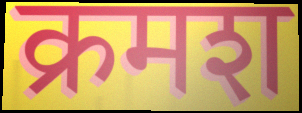
क्रमश